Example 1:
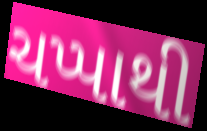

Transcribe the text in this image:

ચપ્પાથી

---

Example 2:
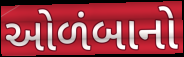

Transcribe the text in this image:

ઓળંબાનો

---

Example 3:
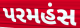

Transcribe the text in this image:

પરમહંસ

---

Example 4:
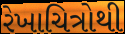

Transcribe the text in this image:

રેખાચિત્રોથી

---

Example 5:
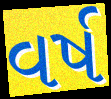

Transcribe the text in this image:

વર્ષ